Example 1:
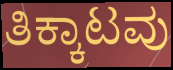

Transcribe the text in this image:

ತಿಕ್ಕಾಟವು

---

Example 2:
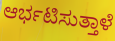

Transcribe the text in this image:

ಆರ್ಭಟಿಸುತ್ತಾಳೆ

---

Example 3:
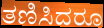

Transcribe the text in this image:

ತಣಿಸಿದರೂ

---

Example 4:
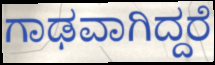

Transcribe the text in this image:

ಗಾಢವಾಗಿದ್ದರೆ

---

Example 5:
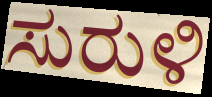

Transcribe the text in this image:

ಸುರುಳಿ